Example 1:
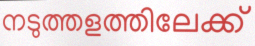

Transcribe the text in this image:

നടുത്തളത്തിലേക്ക്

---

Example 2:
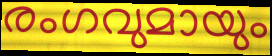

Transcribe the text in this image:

രംഗവുമായും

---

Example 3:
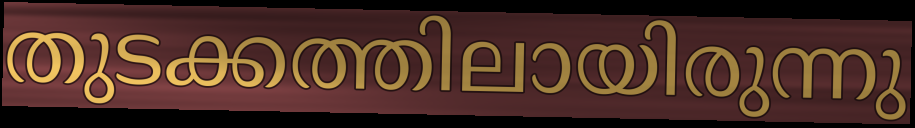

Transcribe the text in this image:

തുടക്കത്തിലായിരുന്നു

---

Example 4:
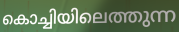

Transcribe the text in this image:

കൊച്ചിയിലെത്തുന്ന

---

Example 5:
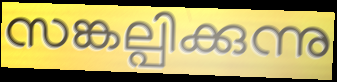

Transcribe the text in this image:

സങ്കല്പിക്കുന്നു